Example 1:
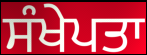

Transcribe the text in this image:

ਸੰਖੇਪਤਾ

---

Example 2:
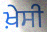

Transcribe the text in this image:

ਖ਼ੇਸੀ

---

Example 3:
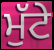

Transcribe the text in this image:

ਮੁੱਟੇ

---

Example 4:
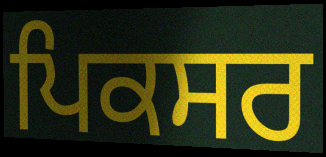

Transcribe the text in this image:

ਪਿਕਸਰ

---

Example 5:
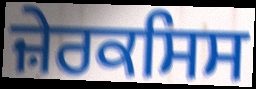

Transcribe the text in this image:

ਜ਼ੇਰਕਸਿਸ